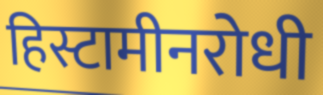
हिस्टामीनरोधी